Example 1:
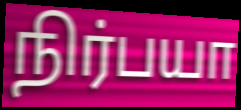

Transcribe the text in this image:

நிர்பயா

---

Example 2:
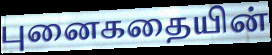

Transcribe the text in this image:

புனைகதையின்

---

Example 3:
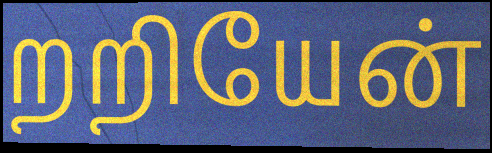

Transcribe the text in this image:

றறியேன்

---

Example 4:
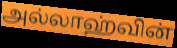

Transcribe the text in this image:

அல்லாஹ்வின்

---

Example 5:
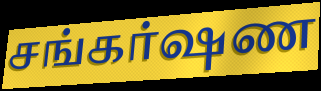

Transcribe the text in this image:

சங்கர்ஷண